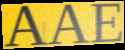
AAE